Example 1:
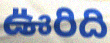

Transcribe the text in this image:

ఊరిది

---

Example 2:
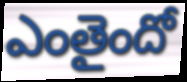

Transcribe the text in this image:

ఎంతైందో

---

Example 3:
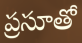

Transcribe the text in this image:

ప్రసూతో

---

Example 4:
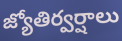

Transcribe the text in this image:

జ్యోతిర్వర్షాలు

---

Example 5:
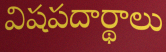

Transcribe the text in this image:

విషపదార్థాలు